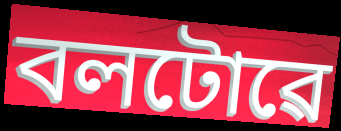
বলটোৱে